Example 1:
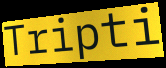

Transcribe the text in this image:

Tripti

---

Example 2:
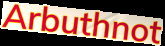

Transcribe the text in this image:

Arbuthnot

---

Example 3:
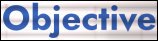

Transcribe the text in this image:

Objective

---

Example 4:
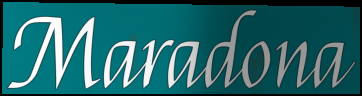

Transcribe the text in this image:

Maradona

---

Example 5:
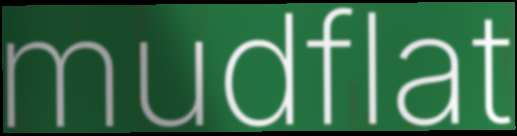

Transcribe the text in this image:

mudflat